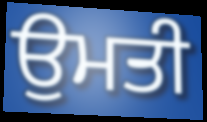
ਉਮਤੀ